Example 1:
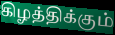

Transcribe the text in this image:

கிழத்திக்கும்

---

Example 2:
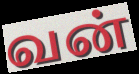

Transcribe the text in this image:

வன்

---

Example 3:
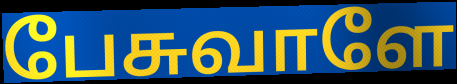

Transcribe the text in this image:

பேசுவாளே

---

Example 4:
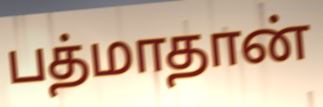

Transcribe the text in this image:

பத்மாதான்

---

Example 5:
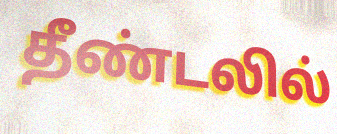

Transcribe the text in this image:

தீண்டலில்